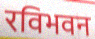
रविभवन